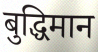
बुद्धिमान